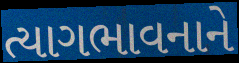
ત્યાગભાવનાને